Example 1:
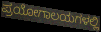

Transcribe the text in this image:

ಪ್ರಯೋಗಾಲಯಗಳಲ್ಲಿ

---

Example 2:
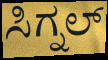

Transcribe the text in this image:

ಸಿಗ್ನಲ್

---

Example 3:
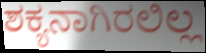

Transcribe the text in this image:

ಶಕ್ಯನಾಗಿರಲಿಲ್ಲ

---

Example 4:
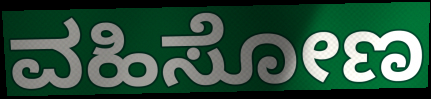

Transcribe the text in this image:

ವಹಿಸೋಣ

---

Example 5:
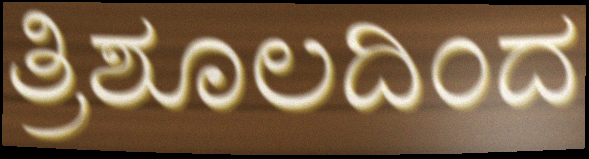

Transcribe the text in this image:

ತ್ರಿಶೂಲದಿಂದ